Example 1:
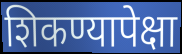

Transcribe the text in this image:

शिकण्यापेक्षा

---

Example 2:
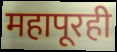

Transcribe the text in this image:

महापूरही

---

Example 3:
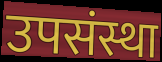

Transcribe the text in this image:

उपसंस्था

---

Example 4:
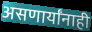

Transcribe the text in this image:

असणार्यांनाही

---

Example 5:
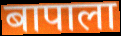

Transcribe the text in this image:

बापाला